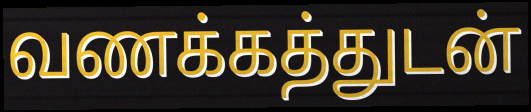
வணக்கத்துடன்